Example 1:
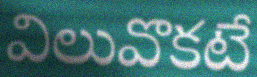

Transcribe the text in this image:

విలువొకటే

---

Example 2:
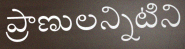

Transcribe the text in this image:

ప్రాణులన్నిటిని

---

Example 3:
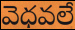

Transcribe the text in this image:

వెధవలే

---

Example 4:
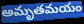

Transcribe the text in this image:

అమృతమయం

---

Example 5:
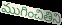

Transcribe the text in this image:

ముగించితిని